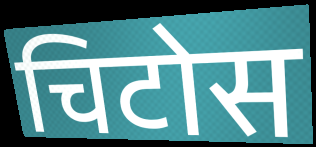
चिटोस